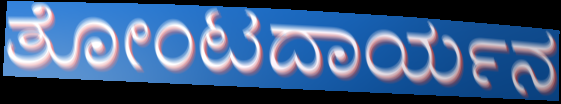
ತೋಂಟದಾರ್ಯನ